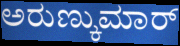
ಅರುಣ್ಕುಮಾರ್